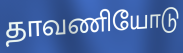
தாவணியோடு